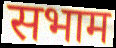
सभाम